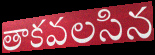
తాకవలసిన